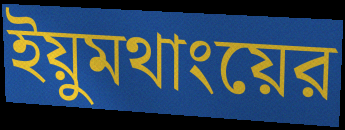
ইয়ুমথাংয়ের